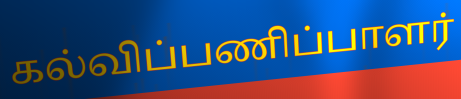
கல்விப்பணிப்பாளர்